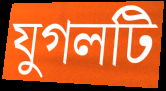
যুগলটি